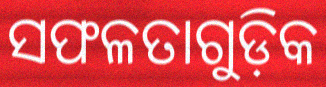
ସଫଳତାଗୁଡ଼ିକ